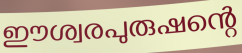
ഈശ്വരപുരുഷന്റെ